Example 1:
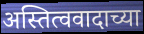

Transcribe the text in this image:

अस्तित्ववादाच्या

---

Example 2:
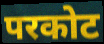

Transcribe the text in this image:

परकोट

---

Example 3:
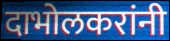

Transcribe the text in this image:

दाभोलकरांनी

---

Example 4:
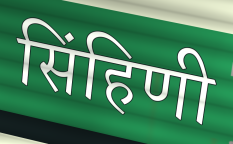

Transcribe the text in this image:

सिंहिणी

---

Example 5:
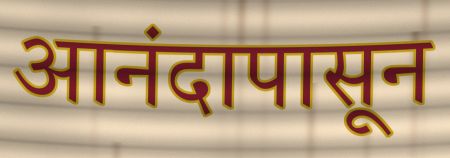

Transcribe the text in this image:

आनंदापासून